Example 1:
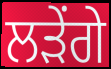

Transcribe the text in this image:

ਲੜੇਂਗੇ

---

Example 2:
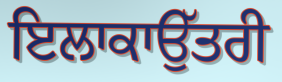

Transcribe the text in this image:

ਇਲਾਕਾਉੱਤਰੀ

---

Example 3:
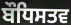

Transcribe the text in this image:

ਬੌਧਿਸਤਵ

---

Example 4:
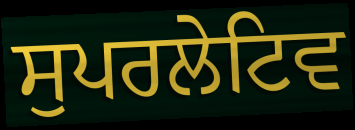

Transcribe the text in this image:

ਸੁਪਰਲੇਟਿਵ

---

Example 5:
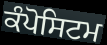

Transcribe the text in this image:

ਕੰਪੋਸਿਟਮ